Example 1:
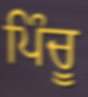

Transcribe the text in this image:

ਪਿੰਚੂ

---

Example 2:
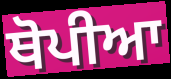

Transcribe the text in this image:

ਥੋਪੀਆ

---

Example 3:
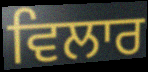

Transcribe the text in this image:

ਵਿਲਾਰ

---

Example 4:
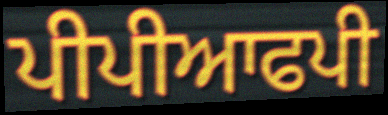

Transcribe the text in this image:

ਪੀਪੀਆਫਪੀ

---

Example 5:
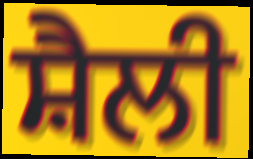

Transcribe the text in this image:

ਸ਼ੈਲੀ